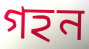
গহন